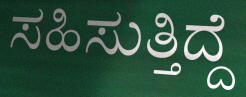
ಸಹಿಸುತ್ತಿದ್ದೆ